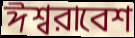
ঈশ্বরাবেশ